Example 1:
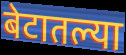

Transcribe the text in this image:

बेटातल्या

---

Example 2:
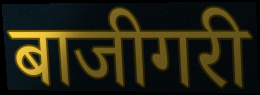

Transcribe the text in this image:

बाजीगरी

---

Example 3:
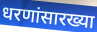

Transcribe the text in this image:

धरणांसारख्या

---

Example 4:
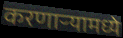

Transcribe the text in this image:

करणाऱ्यामध्ये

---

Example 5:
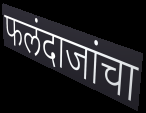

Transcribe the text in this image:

फलंदाजांचा